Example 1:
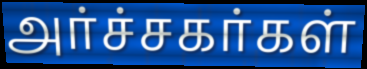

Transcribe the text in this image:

அர்ச்சகர்கள்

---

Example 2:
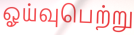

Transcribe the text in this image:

ஓய்வுபெற்று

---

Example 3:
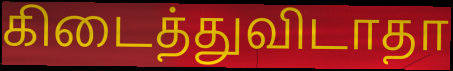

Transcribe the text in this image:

கிடைத்துவிடாதா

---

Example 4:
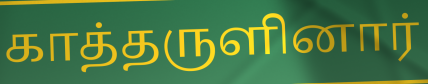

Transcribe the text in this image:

காத்தருளினார்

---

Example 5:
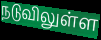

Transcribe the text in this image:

நடுவிலுள்ள